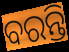
ବରନ୍ତି